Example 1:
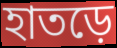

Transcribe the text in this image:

হাতড়ে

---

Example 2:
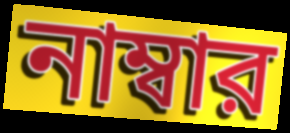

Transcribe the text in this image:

নাম্বার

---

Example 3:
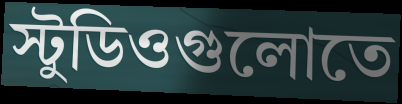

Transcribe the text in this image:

স্টুডিওগুলোতে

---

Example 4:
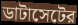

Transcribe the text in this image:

ডাটাসেটের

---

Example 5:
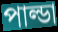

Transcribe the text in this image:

পাল্ডা